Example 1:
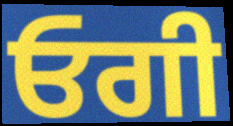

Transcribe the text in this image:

ਓਗੀ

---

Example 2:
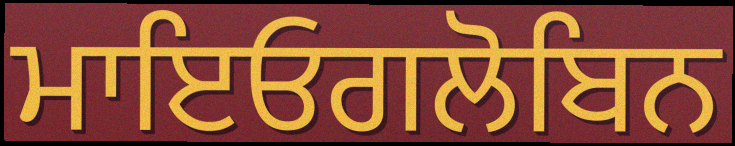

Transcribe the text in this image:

ਮਾਇਓਗਲੋਬਿਨ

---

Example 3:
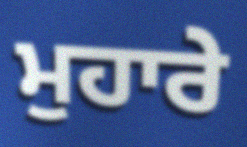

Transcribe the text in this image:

ਮੁਹਾਰੇ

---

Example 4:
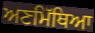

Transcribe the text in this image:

ਅਣਮਿੱਥਿਆ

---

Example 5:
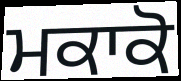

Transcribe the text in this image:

ਮਕਾਕੋ